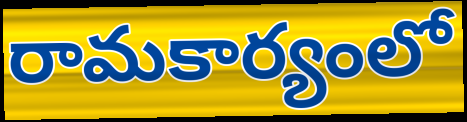
రామకార్యంలో